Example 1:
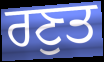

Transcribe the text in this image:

ਰਣੁਤ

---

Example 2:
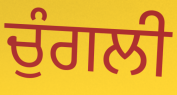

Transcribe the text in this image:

ਚੁੰਗਲੀ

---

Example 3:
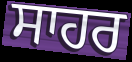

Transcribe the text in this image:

ਸਾਹਰ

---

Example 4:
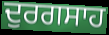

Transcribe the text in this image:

ਦੁਰਗਸਾਹ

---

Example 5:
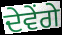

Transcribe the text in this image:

ਦੇਵੇਂਗੇ